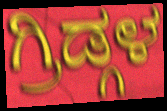
ಗ್ರಿಡ್ಗಳ